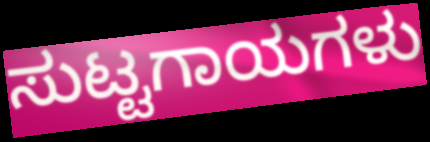
ಸುಟ್ಟಗಾಯಗಳು